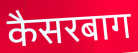
कैसरबाग